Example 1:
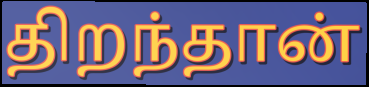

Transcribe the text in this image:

திறந்தான்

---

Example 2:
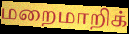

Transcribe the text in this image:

மறைமாறிக்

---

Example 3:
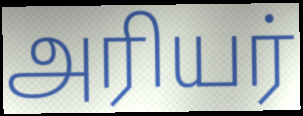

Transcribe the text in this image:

அரியர்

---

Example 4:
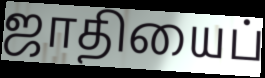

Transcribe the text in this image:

ஜாதியைப்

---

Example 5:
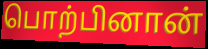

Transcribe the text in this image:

பொற்பினான்